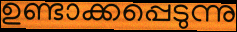
ഉണ്ടാക്കപ്പെടുന്നു